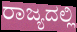
ರಾಜ್ಯದಲ್ಲಿ